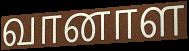
வானாள